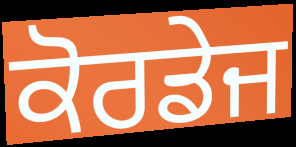
ਕੋਰਡੇਜ